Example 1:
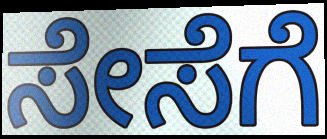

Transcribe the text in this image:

ಸೇಸೆಗೆ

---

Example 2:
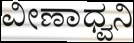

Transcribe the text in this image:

ವೀಣಾಧ್ವನಿ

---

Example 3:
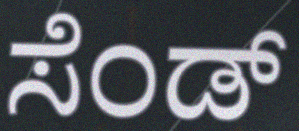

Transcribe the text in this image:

ಸೆಂಡ್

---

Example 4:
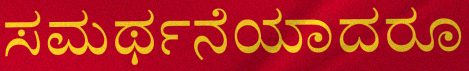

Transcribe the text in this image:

ಸಮರ್ಥನೆಯಾದರೂ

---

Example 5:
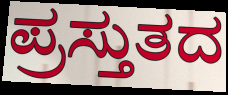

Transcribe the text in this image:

ಪ್ರಸ್ತುತದ